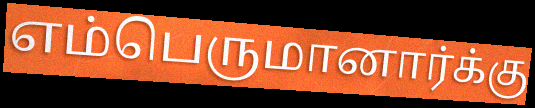
எம்பெருமானார்க்கு